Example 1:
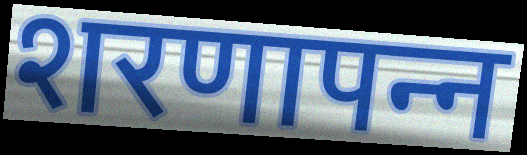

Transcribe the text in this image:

शरणापन्न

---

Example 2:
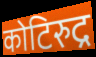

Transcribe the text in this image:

कोटिरुद्र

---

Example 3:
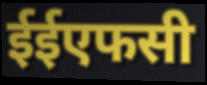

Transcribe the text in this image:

ईईएफसी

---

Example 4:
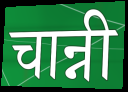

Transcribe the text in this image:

चान्नी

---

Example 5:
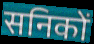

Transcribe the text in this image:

सनिकों